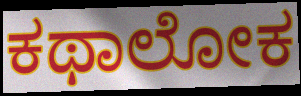
ಕಥಾಲೋಕ